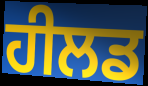
ਹੀਲਡ